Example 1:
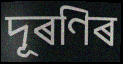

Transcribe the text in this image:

দূৰণিৰ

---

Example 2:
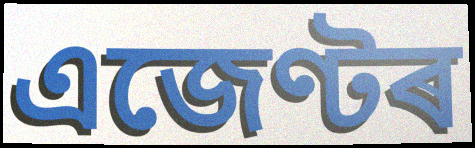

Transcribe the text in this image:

এজেণ্টৰ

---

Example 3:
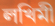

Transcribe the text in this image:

লখিমী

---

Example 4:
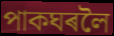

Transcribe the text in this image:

পাকঘৰলৈ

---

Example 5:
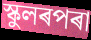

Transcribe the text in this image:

স্কুলৰপৰা